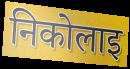
निकोलाइ